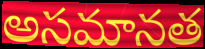
అసమానత